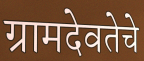
ग्रामदेवतेचे